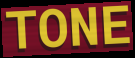
TONE